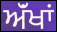
ਅੱਂਖਾਂ